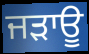
ਜੜਾਊ